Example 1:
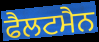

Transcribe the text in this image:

ਫੈਲਟਮੈਨ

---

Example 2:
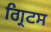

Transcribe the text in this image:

ਗ੍ਰਿਟਸ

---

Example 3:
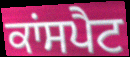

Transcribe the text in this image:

ਕਾਂਸਪੈਟ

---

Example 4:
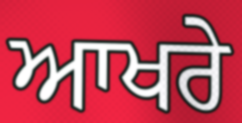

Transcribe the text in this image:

ਆਖਰੇ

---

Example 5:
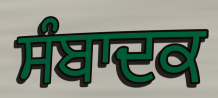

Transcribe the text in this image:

ਸੰਬਾਦਕ